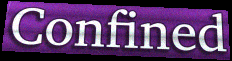
Confined